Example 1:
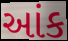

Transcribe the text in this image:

આંક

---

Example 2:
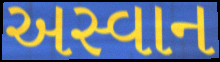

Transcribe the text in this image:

અસ્વાન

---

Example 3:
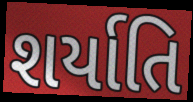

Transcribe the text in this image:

શર્યાતિ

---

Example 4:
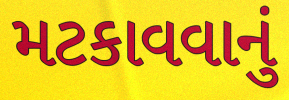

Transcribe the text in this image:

મટકાવવાનું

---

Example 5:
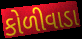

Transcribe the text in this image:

કોળીવાડા